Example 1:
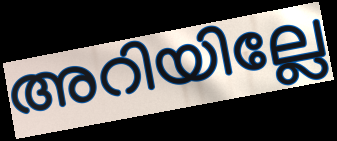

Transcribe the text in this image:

അറിയില്ലേ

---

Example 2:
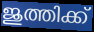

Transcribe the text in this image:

ജുത്തിക്ക്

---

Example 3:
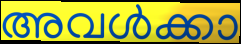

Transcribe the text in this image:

അവൾക്കാ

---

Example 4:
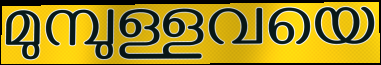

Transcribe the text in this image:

മുമ്പുള്ളവയെ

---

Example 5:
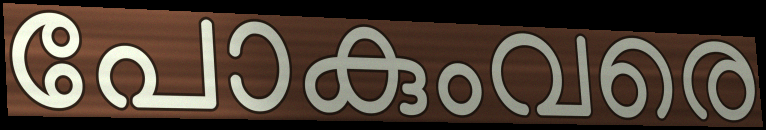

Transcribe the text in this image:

പോകുംവരെ